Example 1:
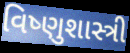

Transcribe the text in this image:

વિષ્ણુશાસ્ત્રી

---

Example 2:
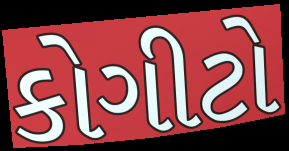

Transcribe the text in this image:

કોગીટો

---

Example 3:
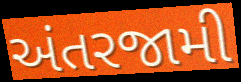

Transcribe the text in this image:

અંતરજામી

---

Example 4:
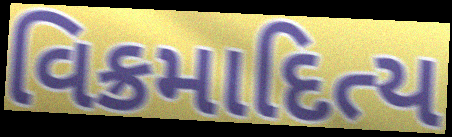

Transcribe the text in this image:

વિક્રમાદિત્ય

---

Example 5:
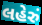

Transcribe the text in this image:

લહેરું